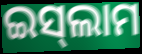
ଇସ୍‌ଲାମ